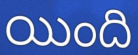
యింది